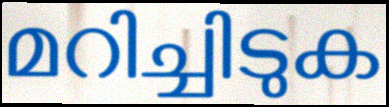
മറിച്ചിടുക